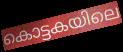
കൊട്ടകയിലെ